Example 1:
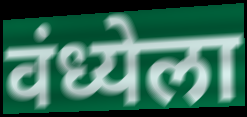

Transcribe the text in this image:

वंध्येला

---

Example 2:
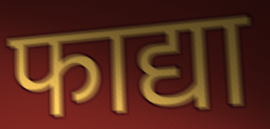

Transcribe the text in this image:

फाद्या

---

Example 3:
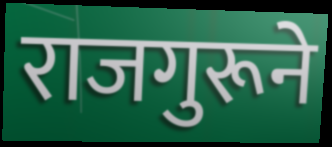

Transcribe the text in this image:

राजगुरूने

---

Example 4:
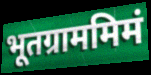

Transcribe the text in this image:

भूतग्राममिमं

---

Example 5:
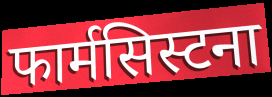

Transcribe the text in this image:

फार्मसिस्टना